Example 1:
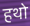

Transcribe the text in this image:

हथो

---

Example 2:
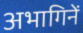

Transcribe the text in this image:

अभागिनें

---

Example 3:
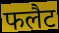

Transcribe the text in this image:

फलैट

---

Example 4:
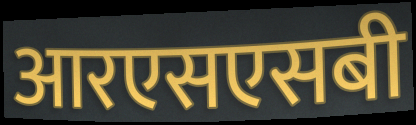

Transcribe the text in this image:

आरएसएसबी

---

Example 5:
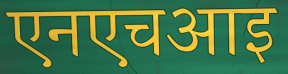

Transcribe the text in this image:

एनएचआइ